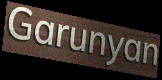
Garunyan